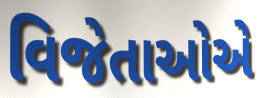
વિજેતાઓએ